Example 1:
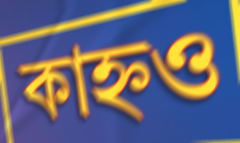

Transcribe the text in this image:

কাহ্নও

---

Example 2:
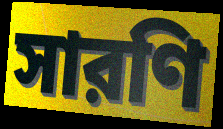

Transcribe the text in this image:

সারণি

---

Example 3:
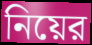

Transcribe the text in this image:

নিয়ের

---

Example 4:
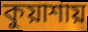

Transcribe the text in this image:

কুয়াশায়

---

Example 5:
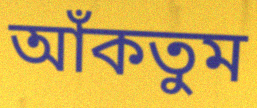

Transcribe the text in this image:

আঁকতুম